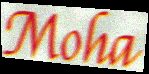
Moha